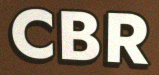
CBR